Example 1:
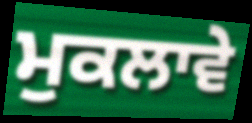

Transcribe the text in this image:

ਮੁਕਲਾਵੇ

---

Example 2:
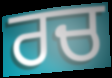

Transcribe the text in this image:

ਰਚ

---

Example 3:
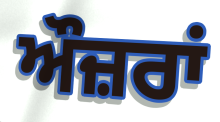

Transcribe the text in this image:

ਔਜ਼ਰਾਂ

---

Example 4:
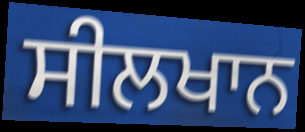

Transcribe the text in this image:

ਸੀਲਖਾਨ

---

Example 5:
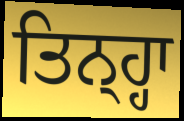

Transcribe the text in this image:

ਤਿਨ੍ਹ੍ਹਾ